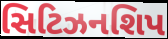
સિટિઝનશિપ